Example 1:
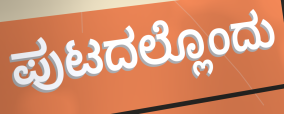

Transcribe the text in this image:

ಪುಟದಲ್ಲೊಂದು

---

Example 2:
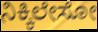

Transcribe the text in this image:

ನಿಕ್ಕಿಲೇಸೋ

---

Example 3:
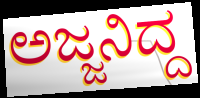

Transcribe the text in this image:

ಅಜ್ಜನಿದ್ದ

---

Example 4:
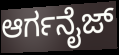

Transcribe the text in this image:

ಆರ್ಗನೈಜ್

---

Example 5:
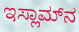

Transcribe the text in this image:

ಇಸ್ಲಾಮ್‌ನ